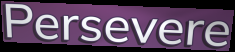
Persevere